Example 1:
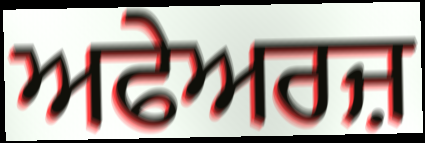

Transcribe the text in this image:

ਅਫੇਅਰਜ਼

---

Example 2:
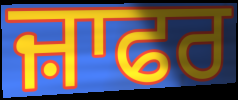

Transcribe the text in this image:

ਜ਼ਾਫਰ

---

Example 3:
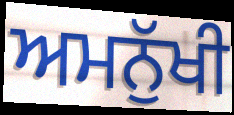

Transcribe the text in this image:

ਅਮਨੁੱਖੀ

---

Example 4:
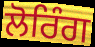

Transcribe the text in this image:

ਲੋਰਿੰਗ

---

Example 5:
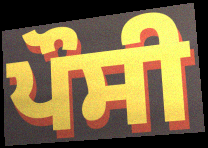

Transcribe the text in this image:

ਪੌਸੀ